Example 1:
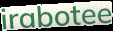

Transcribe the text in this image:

irabotee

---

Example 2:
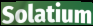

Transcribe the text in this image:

Solatium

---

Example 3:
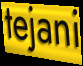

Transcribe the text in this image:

tejani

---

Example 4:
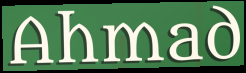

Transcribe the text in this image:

Ahmad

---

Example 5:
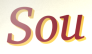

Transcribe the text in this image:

Sou